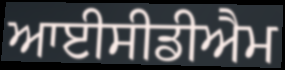
ਆਈਸੀਡੀਐਮ